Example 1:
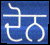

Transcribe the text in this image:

ਦੋਨ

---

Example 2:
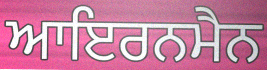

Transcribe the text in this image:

ਆਇਰਨਮੈਨ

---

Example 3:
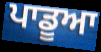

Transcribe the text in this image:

ਪਾਡੂਆ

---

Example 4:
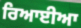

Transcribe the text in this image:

ਰਿਆਈਆ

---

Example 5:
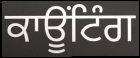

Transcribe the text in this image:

ਕਾਊਂਟਿੰਗ